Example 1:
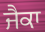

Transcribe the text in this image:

ਜੈਕਾ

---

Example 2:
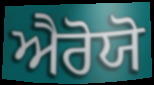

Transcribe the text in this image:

ਐਰੋਯੋ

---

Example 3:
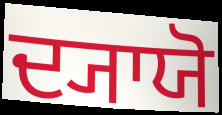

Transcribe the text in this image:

ਦ੍ਯਾਯੋ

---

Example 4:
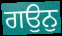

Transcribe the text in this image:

ਗਉਨੁ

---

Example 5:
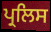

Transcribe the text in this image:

ਪ੍ਰਲਿਸ